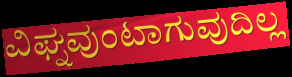
ವಿಘ್ನವುಂಟಾಗುವುದಿಲ್ಲ